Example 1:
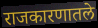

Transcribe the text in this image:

राजकारणातले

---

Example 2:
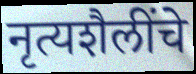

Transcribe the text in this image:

नृत्यशैलींचे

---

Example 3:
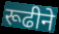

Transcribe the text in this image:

रूढीने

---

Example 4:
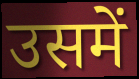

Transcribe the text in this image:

उसमें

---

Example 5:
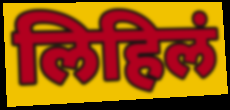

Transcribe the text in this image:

लिहिलं